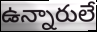
ఉన్నారులే